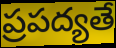
ప్రపద్యతే